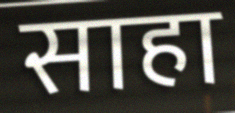
साहा